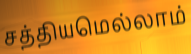
சத்தியமெல்லாம்